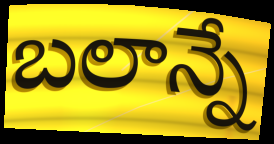
బలాన్నే